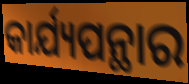
କାର୍ଯ୍ୟପନ୍ଥାର